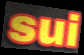
sui